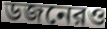
ডজনেরও